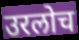
उरलोच